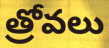
త్రోవలు